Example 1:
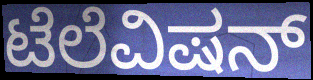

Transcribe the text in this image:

ಟೆಲೆವಿಷನ್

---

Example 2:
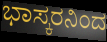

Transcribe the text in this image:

ಭಾಸ್ಕರನಿಂದ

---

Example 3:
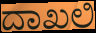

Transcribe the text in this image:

ದಾಖಲಿ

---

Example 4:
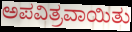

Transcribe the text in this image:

ಅಪವಿತ್ರವಾಯಿತು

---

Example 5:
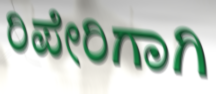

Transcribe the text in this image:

ರಿಪೇರಿಗಾಗಿ